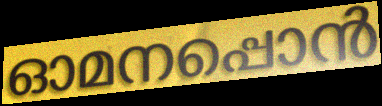
ഓമനപ്പൊൻ